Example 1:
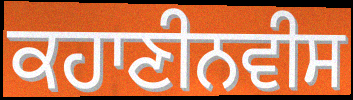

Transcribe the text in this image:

ਕਹਾਣੀਨਵੀਸ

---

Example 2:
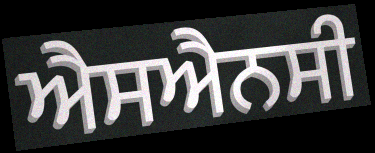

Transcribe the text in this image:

ਐਸਐਨਸੀ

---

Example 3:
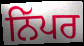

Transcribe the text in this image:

ਨਿੱਪਰ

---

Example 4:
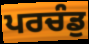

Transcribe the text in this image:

ਪਰਚੰਡੁ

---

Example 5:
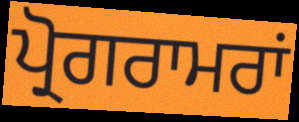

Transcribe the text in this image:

ਪ੍ਰੋਗਰਾਮਰਾਂ